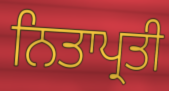
ਨਿਤਾਪ੍ਰਤੀ